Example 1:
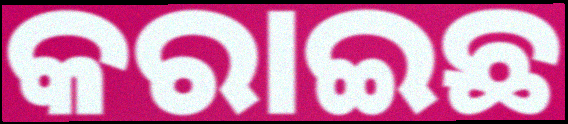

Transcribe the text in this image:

କରାଇଛ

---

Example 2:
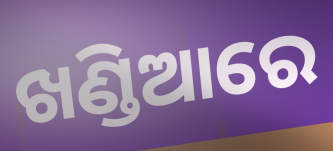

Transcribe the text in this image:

ଖଣ୍ଡିଆରେ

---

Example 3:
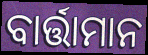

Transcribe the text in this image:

ବାର୍ତ୍ତାମାନ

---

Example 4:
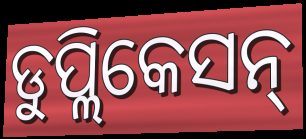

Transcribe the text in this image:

ଡୁପ୍ଲିକେସନ୍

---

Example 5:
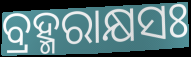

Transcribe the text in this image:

ବ୍ରହ୍ମରାକ୍ଷସଃ